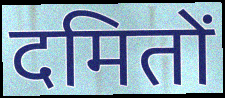
दमितों